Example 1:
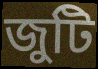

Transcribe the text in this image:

জুটি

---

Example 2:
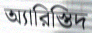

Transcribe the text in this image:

অ্যারিস্তিদ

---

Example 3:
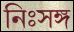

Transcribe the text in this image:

নিঃসঙ্গ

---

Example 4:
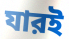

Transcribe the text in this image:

যারই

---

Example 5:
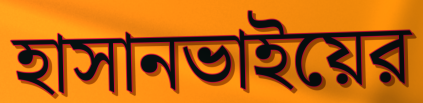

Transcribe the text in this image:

হাসানভাইয়ের